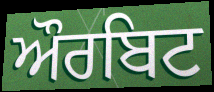
ਔਰਬਿਟ